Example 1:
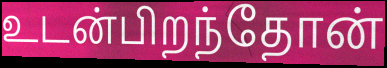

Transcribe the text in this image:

உடன்பிறந்தோன்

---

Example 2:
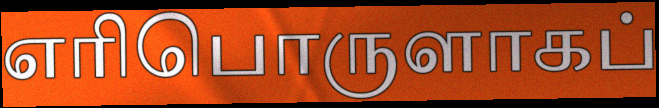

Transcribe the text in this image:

எரிபொருளாகப்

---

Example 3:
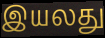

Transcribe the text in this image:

இயலது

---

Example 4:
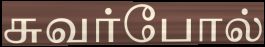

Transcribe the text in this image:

சுவர்போல்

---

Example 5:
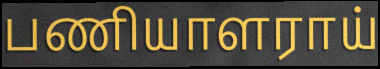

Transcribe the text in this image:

பணியாளராய்